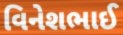
વિનેશભાઈ